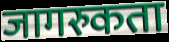
जागरुकता